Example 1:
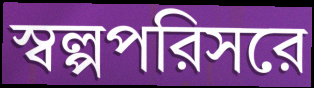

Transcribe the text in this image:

স্বল্পপরিসরে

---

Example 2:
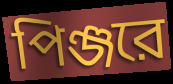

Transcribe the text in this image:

পিঞ্জরে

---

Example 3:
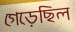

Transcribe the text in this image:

গেড়েছিল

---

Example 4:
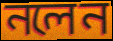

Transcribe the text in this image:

নলেন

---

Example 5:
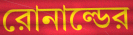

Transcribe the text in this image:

রোনাল্ডের